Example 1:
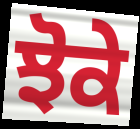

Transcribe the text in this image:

ਝੋਕੇ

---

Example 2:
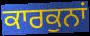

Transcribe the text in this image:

ਕਾਰਕੁਨਾਂ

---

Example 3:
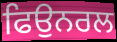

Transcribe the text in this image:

ਫਿਉਨਰਲ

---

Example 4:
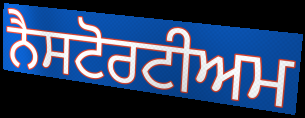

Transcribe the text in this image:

ਨੈਸਟੋਰਟੀਅਮ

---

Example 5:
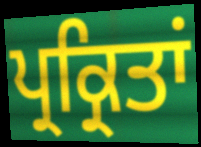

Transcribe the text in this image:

ਪ੍ਰਕ੍ਰਿਤਾਂ